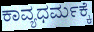
ಕಾವ್ಯಧರ್ಮಕ್ಕೆ